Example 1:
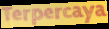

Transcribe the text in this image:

Terpercaya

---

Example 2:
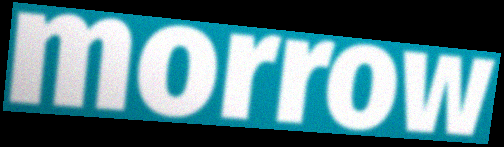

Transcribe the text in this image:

morrow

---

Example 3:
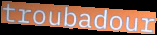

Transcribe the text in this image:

troubadour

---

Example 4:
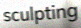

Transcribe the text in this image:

sculpting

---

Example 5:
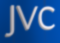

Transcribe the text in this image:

JVC